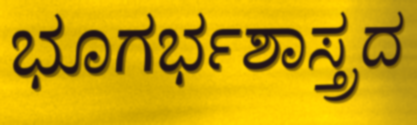
ಭೂಗರ್ಭಶಾಸ್ತ್ರದ